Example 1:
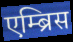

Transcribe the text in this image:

एम्ब्रिस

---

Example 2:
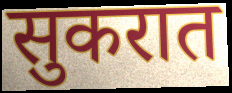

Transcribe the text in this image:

सुकरात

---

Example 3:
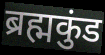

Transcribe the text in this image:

ब्रह्मकुंड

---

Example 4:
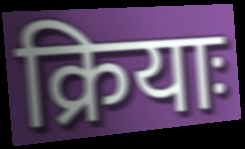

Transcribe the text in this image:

क्रियाः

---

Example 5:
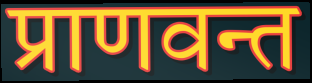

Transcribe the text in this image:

प्राणवन्त